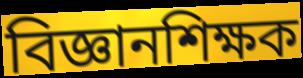
বিজ্ঞানশিক্ষক